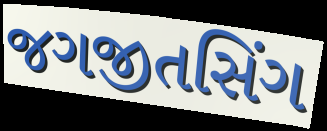
જગજીતસિંગ